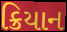
ક્રિયાન